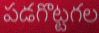
పడగొట్టగల